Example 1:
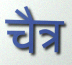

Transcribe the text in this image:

चैत्र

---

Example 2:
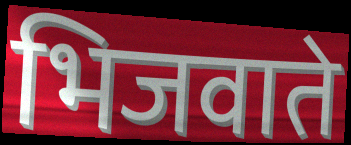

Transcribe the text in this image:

भिजवाते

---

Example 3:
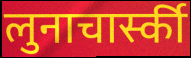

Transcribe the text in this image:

लुनाचार्स्की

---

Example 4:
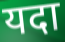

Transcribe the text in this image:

यदा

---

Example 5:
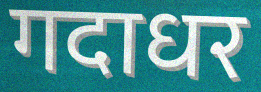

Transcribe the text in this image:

गदाधर